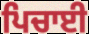
ਪਿਚਾਈ